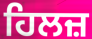
ਹਿਲਜ਼